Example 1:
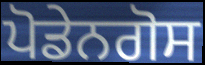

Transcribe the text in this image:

ਪੋਡੇਨਗੋਸ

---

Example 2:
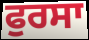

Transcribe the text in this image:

ਫੁਰਸਾ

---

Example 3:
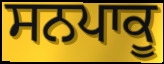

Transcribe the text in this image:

ਸਨਪਾਕੂ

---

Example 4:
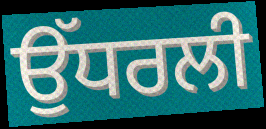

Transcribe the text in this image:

ਉੱਧਰਲੀ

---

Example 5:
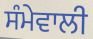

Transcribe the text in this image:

ਸੰਮੇਵਾਲੀ